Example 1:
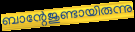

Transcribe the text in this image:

ബാന്റേജുണ്ടായിരുന്നു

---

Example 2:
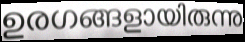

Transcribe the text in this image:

ഉരഗങ്ങളായിരുന്നു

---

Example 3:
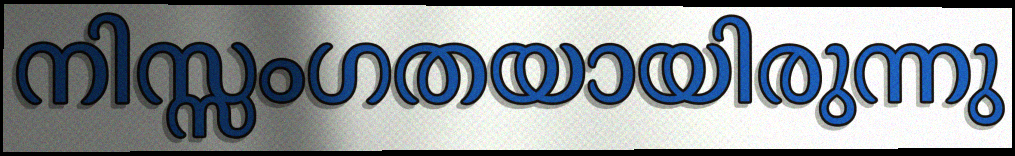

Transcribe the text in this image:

നിസ്സംഗതയായിരുന്നു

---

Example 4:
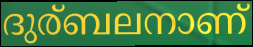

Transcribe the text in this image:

ദുര്ബലനാണ്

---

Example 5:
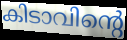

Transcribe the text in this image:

കിടാവിന്റെ